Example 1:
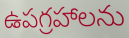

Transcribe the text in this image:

ఉపగ్రహాలను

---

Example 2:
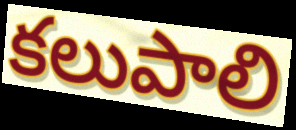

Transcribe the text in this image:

కలుపాలి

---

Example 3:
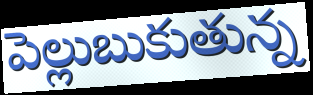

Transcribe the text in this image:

పెల్లుబుకుతున్న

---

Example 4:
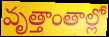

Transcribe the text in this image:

వృత్తాంతాల్లో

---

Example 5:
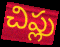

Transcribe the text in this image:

చిప్లు